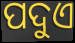
ପଦୁଏ